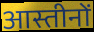
आस्तीनों